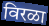
विरळा